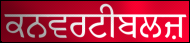
ਕਨਵਰਟੀਬਲਜ਼